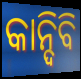
କାନ୍ଦିବି